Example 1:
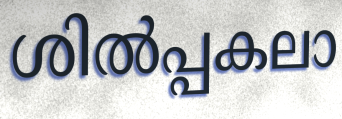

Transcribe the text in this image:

ശിൽപ്പകലാ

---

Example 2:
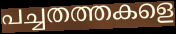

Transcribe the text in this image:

പച്ചതത്തകളെ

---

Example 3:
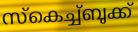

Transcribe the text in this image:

സ്‌കെച്ച്ബുക്ക്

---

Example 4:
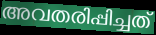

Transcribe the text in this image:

അവതരിപ്പിച്ചത്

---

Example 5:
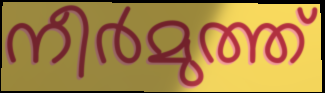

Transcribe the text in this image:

നീർമുത്ത്